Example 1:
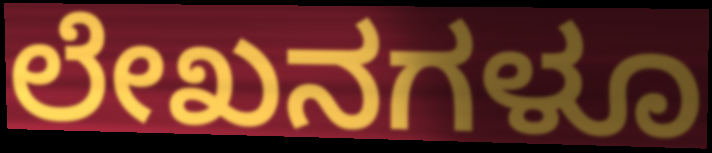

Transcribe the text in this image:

ಲೇಖನಗಳೂ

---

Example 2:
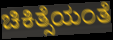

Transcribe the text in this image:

ಚಿಕಿತ್ಸೆಯಂತೆ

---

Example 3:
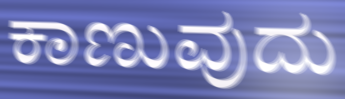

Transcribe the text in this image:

ಕಾಣುವುದು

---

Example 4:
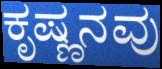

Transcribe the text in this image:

ಕೃಷ್ಣನವು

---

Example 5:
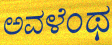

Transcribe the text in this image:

ಅವಳೆಂಥ